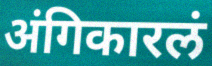
अंगिकारलं